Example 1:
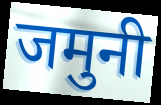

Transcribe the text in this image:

जमुनी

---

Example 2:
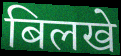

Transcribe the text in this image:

बिलखे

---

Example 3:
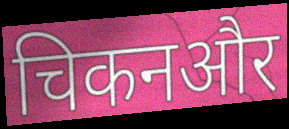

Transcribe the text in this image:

चिकनऔर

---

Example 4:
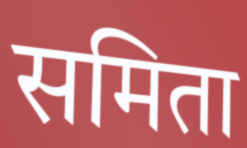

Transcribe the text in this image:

समिता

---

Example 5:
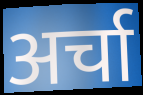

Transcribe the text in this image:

अर्चा